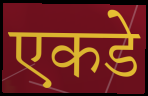
एकडे